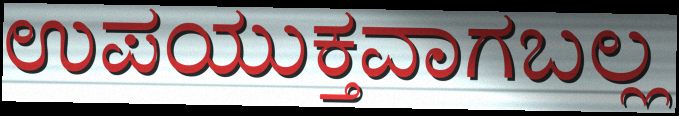
ಉಪಯುಕ್ತವಾಗಬಲ್ಲ